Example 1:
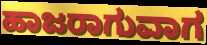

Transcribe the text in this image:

ಹಾಜರಾಗುವಾಗ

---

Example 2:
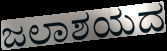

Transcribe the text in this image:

ಜಲಾಶಯದ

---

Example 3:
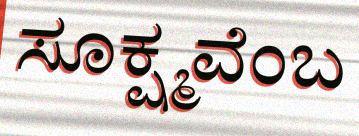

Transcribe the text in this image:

ಸೂಕ್ಷ್ಮವೆಂಬ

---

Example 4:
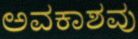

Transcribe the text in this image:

ಅವಕಾಶವು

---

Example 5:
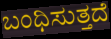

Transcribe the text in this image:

ಬಂಧಿಸುತ್ತದೆ